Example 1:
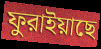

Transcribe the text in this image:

ফুরাইয়াছে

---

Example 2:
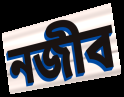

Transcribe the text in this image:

নজীব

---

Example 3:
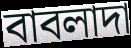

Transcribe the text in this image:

বাবলাদা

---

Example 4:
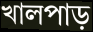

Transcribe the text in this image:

খালপাড়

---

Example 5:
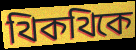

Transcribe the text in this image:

থিকথিকে